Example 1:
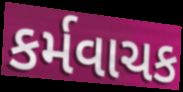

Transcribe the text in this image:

કર્મવાચક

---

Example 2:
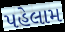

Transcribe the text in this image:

પહેલામ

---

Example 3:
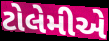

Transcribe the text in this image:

ટોલેમીએ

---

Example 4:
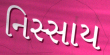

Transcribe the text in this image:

નિસ્સાય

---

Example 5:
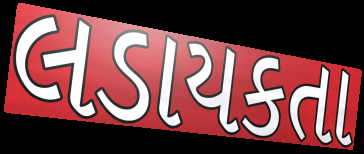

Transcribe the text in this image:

લડાયકતા